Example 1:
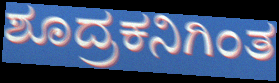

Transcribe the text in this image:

ಶೂದ್ರಕನಿಗಿಂತ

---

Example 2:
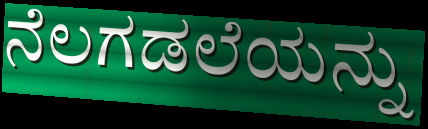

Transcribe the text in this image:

ನೆಲಗಡಲೆಯನ್ನು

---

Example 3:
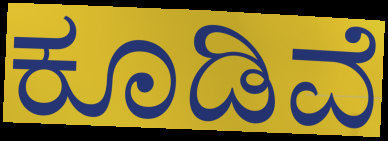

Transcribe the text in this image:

ಕೂಡಿವೆ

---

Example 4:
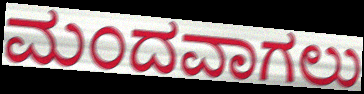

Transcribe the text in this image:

ಮಂದವಾಗಲು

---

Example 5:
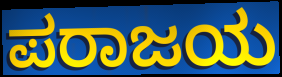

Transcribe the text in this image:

ಪರಾಜಯ